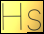
Hs